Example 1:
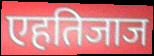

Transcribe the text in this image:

एहतिजाज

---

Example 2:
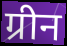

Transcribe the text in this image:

ग्रीन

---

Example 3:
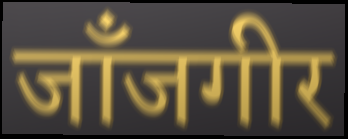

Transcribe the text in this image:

जाँजगीर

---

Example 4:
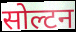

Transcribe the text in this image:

सोल्टन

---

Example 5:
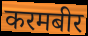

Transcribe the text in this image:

करमबीर